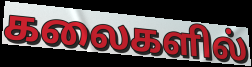
கலைகளில்